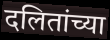
दलितांच्या